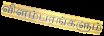
விளம்பரங்களும்